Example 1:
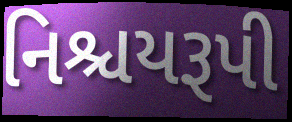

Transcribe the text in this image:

નિશ્ચયરૂપી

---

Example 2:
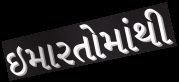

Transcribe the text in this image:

ઇમારતોમાંથી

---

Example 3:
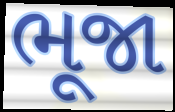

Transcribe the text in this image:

ભૂજા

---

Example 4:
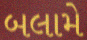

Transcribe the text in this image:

બલામે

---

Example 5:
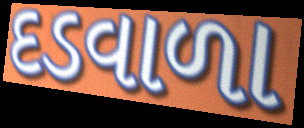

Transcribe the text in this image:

દડવાળા